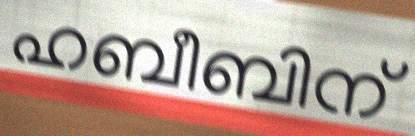
ഹബീബിന്